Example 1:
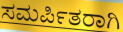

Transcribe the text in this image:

ಸಮರ್ಪಿತರಾಗಿ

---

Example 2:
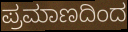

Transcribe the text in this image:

ಪ್ರಮಾಣದಿಂದ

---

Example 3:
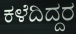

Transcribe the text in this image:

ಕಳೆದಿದ್ದರ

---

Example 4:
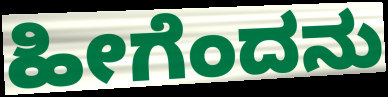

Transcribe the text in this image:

ಹೀಗೆಂದನು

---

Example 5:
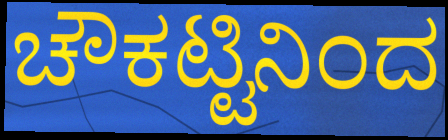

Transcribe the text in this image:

ಚೌಕಟ್ಟಿನಿಂದ